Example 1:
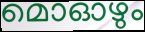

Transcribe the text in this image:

മൊഓഴും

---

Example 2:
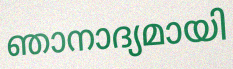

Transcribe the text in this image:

ഞാനാദ്യമായി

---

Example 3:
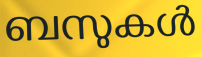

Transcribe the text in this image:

ബസുകൾ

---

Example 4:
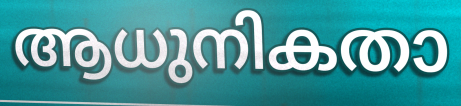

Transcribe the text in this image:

ആധുനികതാ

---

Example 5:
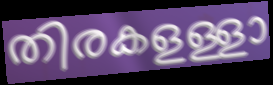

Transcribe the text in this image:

തിരകളള്ളാ